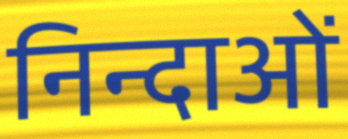
निन्दाओं